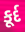
કૂર્દ